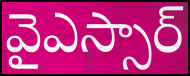
వైఎస్సార్